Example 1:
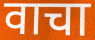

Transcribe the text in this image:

वाचा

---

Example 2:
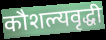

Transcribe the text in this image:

कौशल्यवृद्धी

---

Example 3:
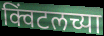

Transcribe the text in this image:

क्विंटलच्या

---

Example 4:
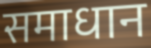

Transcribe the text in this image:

समाधान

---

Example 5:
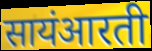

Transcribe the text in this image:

सायंआरती